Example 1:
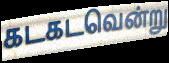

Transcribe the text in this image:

கடகடவென்று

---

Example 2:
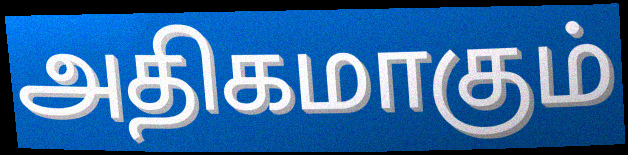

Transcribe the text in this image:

அதிகமாகும்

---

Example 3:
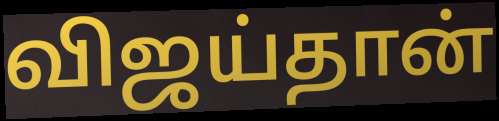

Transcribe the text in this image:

விஜய்தான்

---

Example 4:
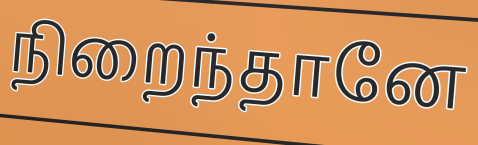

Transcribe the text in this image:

நிறைந்தானே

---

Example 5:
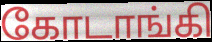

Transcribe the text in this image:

கோடாங்கி